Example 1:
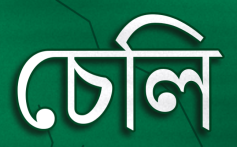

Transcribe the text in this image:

চেলি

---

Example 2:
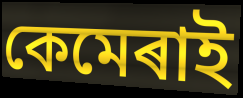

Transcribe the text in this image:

কেমেৰাই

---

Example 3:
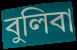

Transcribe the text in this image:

বুলিবা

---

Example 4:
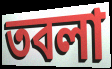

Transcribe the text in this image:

তবলা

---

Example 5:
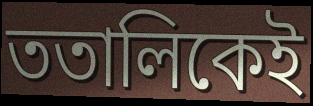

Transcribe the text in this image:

ততালিকেই